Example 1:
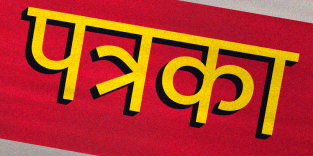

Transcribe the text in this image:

पत्रका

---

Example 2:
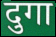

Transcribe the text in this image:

दुगा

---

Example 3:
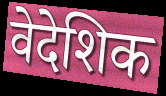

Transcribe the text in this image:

वेदेशिक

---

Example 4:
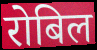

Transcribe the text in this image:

रोबिल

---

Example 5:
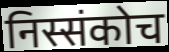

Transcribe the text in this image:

निस्संकोच